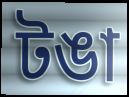
টঙা